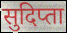
सुदिप्ता